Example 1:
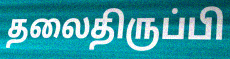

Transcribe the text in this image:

தலைதிருப்பி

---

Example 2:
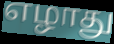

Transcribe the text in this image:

எழாது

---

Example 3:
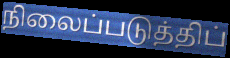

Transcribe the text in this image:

நிலைப்படுத்திப்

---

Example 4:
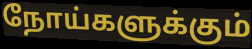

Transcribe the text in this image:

நோய்களுக்கும்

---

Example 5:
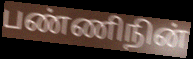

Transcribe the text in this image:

பண்ணிநின்